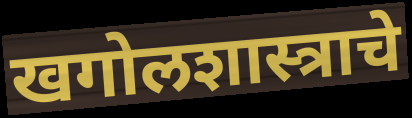
खगोलशास्त्राचे